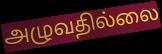
அழுவதில்லை